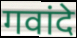
गवांदे